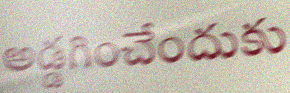
అడ్డగించేందుకు